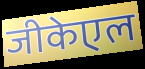
जीकेएल